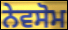
ਨੇਵਸੋਮ